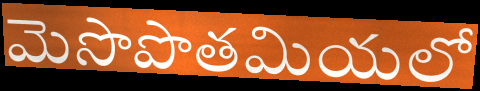
మెసొపొతమియలో